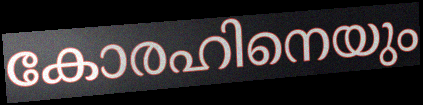
കോരഹിനെയും